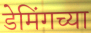
डेमिंगच्या